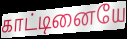
காட்டினையே